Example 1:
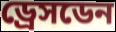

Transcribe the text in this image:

ড্রেসডেন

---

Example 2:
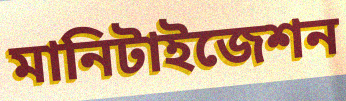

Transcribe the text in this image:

মানিটাইজেশন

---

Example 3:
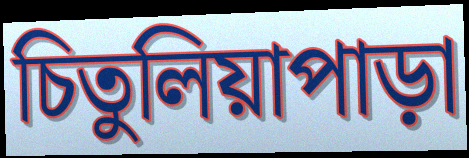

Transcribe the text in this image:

চিতুলিয়াপাড়া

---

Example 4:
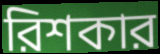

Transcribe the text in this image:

রিশকার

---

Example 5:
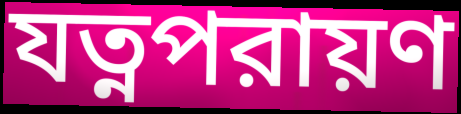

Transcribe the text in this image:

যত্নপরায়ণ